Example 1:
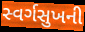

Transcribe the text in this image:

સ્વર્ગસુખની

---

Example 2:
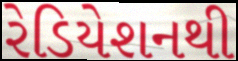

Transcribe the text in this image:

રેડિયેશનથી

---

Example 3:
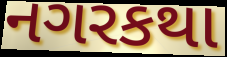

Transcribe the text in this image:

નગરકથા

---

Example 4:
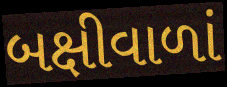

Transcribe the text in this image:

બક્ષીવાળાં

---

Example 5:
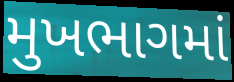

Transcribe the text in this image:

મુખભાગમાં